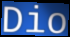
Dio